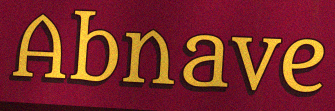
Abnave